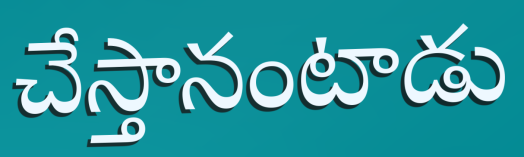
చేస్తానంటాడు